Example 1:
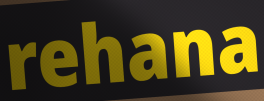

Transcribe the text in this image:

rehana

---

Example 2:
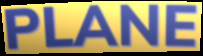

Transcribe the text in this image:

PLANE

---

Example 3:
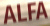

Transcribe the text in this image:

ALFA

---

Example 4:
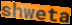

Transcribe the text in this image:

shweta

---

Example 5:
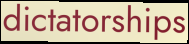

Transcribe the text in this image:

dictatorships